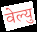
वेल्यु